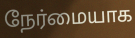
நேர்மையாக